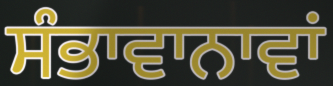
ਸੰਭਾਵਾਨਾਵਾਂ